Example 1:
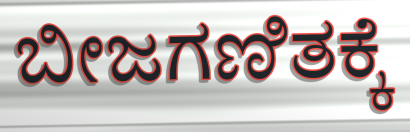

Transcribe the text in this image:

ಬೀಜಗಣಿತಕ್ಕೆ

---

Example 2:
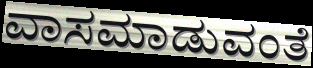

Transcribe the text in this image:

ವಾಸಮಾಡುವಂತೆ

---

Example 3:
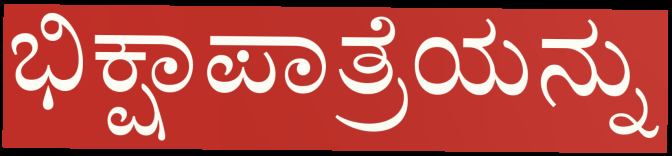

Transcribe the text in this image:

ಭಿಕ್ಷಾಪಾತ್ರೆಯನ್ನು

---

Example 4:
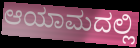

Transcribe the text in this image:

ಆಯಾಮದಲ್ಲಿ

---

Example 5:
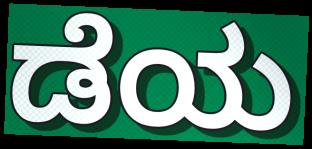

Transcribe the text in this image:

ಡೆಯ